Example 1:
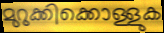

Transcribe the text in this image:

മുറുക്കിക്കൊള്ളുക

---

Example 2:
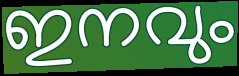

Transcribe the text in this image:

ഇനവും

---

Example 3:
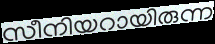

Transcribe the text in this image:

സീനിയറായിരുന്ന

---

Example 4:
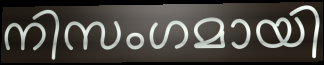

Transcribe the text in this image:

നിസംഗമായി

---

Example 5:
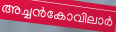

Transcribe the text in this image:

അച്ചൻകോവിലാർ